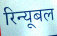
रिन्यूबल